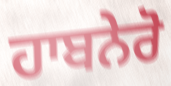
ਹਾਬਨੇਰੋ